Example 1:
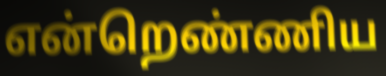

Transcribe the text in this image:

என்றெண்ணிய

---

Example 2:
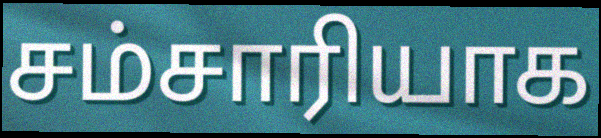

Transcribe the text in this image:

சம்சாரியாக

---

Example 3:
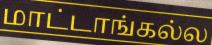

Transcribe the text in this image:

மாட்டாங்கல்ல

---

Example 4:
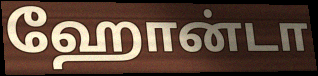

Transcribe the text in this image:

ஹோன்டா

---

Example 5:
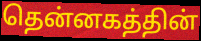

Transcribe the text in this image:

தென்னகத்தின்